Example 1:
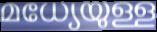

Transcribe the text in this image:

മധ്യേയുള്ള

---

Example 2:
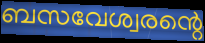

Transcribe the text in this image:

ബസവേശ്വരന്റെ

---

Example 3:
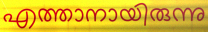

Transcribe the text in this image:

എത്താനായിരുന്നു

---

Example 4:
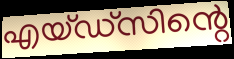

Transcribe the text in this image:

എയ്ഡ്സിന്റെ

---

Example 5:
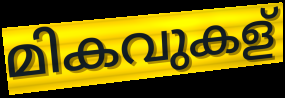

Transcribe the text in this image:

മികവുകള്